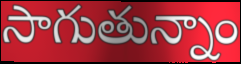
సాగుతున్నాం